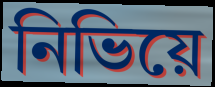
নিভিয়ে